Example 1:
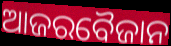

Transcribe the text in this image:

ଆଜରବୈଜାନ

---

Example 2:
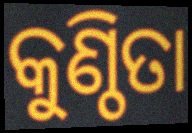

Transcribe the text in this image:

କୁଣ୍ଠିତା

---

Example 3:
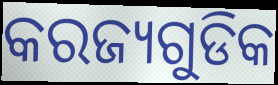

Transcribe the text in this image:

କରଜ୍ୟଗୁଡିକ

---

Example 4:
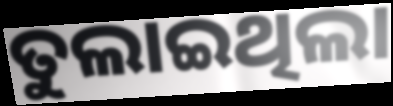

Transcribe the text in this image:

ତୁଲାଇଥିଲା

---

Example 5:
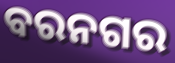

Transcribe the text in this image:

ବରନଗର